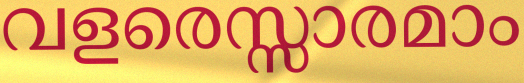
വളരെസ്സാരമാം